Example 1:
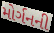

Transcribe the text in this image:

મોર્ગનની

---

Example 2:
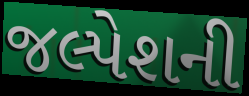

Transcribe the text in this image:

જલ્પેશની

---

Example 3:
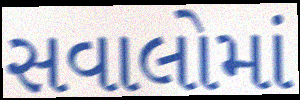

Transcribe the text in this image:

સવાલોમાં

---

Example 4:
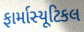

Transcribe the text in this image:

ફાર્માસ્યૂટિકલ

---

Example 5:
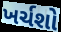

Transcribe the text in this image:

ખર્ચશો